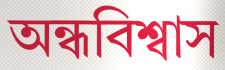
অন্ধবিশ্বাস